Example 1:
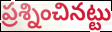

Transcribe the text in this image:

ప్రశ్నించినట్టు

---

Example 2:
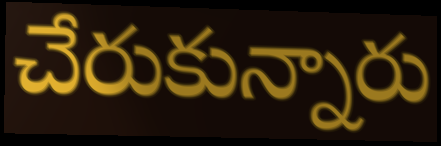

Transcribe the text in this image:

చేరుకున్నారు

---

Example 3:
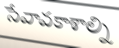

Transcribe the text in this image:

సేవావకాశాల్ని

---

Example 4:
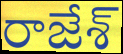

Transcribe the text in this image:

రాజేశ్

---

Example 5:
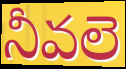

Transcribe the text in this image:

నీవలె